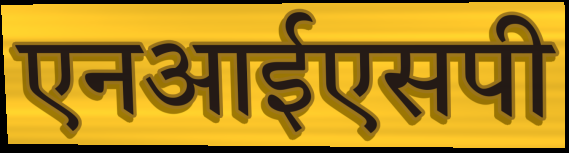
एनआईएसपी